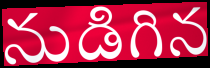
నుడిగిన